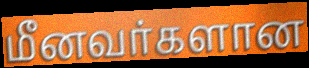
மீனவர்களான